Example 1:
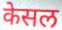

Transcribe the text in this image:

केसल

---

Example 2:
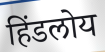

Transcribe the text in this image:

हिंडलोय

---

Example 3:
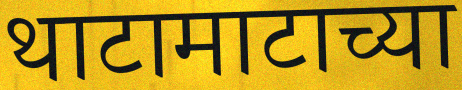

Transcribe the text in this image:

थाटामाटाच्या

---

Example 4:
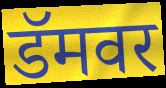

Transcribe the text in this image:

डॅमवर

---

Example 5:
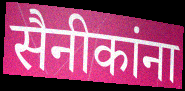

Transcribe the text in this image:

सैनीकांना